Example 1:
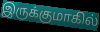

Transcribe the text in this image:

இருக்குமாகில்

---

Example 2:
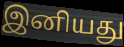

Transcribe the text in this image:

இனியது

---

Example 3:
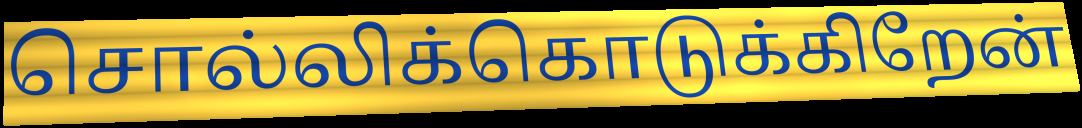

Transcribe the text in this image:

சொல்லிக்கொடுக்கிறேன்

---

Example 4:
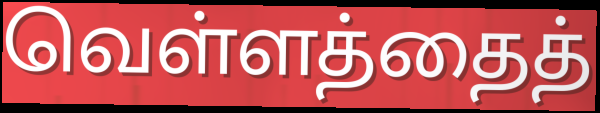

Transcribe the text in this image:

வெள்ளத்தைத்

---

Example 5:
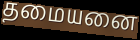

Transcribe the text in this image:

தமையனை